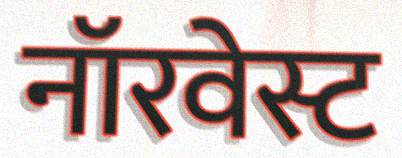
नॉरवेस्ट